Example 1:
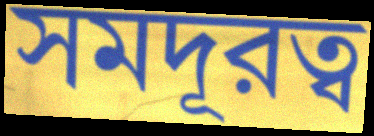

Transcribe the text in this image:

সমদূরত্ব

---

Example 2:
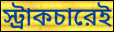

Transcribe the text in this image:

স্ট্রাকচারেই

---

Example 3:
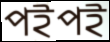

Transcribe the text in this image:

পইপই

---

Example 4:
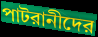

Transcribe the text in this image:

পাটরানীদের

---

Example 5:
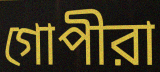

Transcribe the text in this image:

গোপীরা